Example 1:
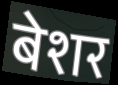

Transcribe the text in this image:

बेशर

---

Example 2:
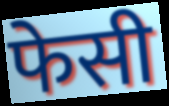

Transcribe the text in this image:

फेसी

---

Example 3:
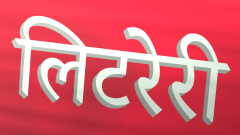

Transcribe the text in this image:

लिटरेरी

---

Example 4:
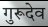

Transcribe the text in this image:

गुरूदेव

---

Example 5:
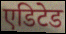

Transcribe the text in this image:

एडिटेड